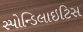
સ્પોન્ડિલાઇટિસ